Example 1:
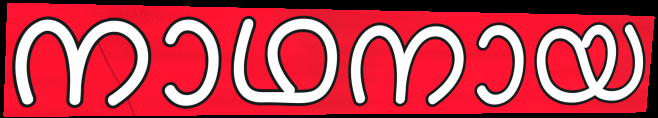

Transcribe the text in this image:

നാഥനായ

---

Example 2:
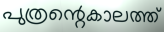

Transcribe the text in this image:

പുത്രന്റെകാലത്ത്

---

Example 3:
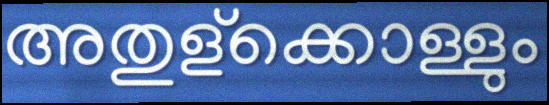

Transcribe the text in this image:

അതുള്ക്കൊള്ളും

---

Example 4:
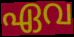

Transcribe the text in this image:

ഏവ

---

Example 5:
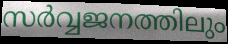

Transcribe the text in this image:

സർവ്വജനത്തിലും